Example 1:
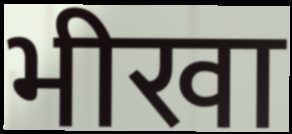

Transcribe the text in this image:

भीखा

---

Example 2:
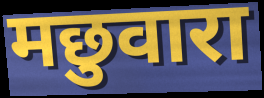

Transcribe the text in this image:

मछुवारा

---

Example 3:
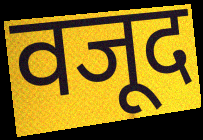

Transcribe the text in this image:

वजूद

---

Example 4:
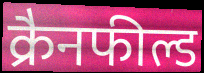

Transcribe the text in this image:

क्रैनफील्ड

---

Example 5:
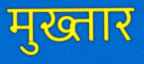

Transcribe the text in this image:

मुख्‍तार